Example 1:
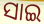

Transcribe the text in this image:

ସାଇ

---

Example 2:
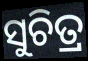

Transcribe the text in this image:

ସୁଚିତ୍ର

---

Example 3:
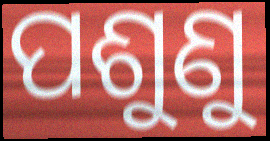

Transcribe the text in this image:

ପଶୁଣୁ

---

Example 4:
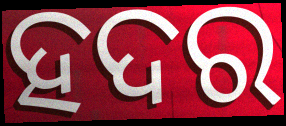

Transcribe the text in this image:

ହଦର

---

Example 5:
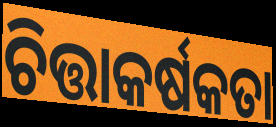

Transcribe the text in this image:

ଚିତ୍ତାକର୍ଷକତା